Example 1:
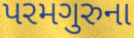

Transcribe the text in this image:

પરમગુરુના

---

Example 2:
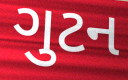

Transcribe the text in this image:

ગુટન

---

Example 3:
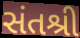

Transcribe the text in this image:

સંતશ્રી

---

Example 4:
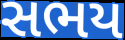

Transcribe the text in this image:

સભય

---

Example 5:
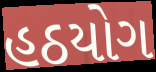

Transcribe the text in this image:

હઠયોગ